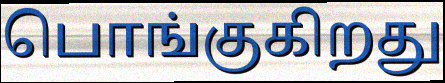
பொங்குகிறது